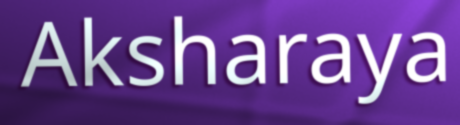
Aksharaya